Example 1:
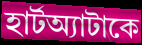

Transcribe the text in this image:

হার্টঅ্যাটাকে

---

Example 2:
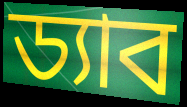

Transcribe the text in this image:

ড্যাব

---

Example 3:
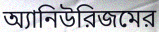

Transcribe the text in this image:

অ্যানিউরিজমের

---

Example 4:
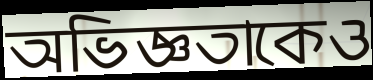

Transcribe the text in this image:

অভিজ্ঞতাকেও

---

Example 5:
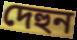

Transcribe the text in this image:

দেহুন